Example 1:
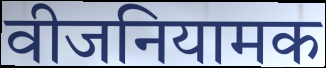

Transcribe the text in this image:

वीजनियामक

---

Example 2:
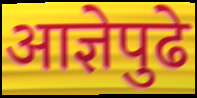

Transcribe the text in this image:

आज्ञेपुढे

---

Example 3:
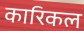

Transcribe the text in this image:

कारिकल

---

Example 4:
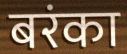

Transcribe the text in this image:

बरंका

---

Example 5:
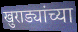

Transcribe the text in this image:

खुराड्यांच्या